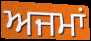
ਅਜਮਾਂ